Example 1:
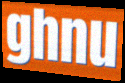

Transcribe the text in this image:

ghnu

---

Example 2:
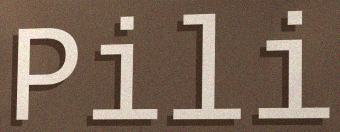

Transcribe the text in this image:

Pili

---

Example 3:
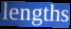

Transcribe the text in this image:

lengths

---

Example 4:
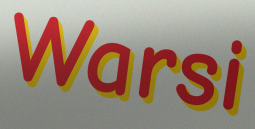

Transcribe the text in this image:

Warsi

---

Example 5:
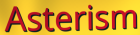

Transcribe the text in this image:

Asterism